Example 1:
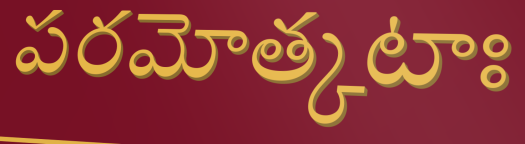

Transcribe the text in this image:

పరమోత్కటాః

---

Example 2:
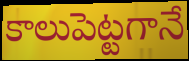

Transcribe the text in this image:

కాలుపెట్టగానే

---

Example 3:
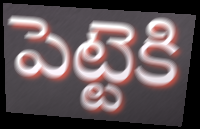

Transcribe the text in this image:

పెట్టెకి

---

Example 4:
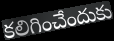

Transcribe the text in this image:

కలిగించేందుకు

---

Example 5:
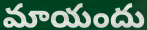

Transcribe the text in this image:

మాయందు